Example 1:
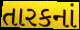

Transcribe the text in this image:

તારકનાં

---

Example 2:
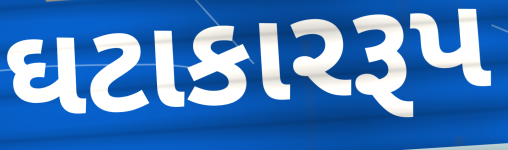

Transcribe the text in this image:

ઘટાકારરૂપ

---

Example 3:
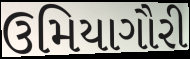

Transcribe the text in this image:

ઉમિયાગૌરી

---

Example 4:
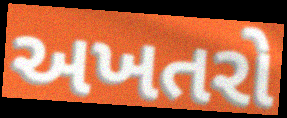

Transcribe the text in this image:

અખતરો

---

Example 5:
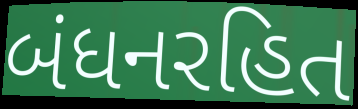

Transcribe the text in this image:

બંધનરહિત